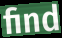
find